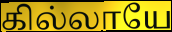
கில்லாயே